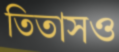
তিতাসও